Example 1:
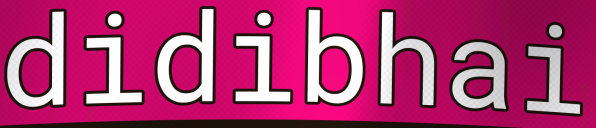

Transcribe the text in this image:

didibhai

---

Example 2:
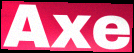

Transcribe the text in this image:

Axe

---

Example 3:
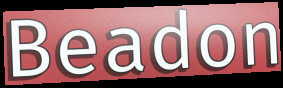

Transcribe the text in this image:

Beadon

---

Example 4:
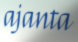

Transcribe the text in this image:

ajanta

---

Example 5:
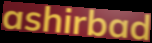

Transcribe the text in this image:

ashirbad